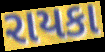
રાયકા